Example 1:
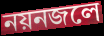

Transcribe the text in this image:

নয়নজলে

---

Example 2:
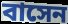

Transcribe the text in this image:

বাসেন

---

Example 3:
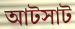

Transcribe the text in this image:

আটসাট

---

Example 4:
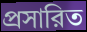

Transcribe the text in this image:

প্রসারিত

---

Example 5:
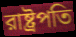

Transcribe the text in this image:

রাষ্ট্রপতি